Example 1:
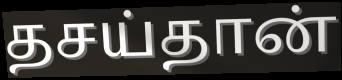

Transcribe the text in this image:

தசய்தான்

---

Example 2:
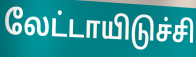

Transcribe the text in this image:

லேட்டாயிடுச்சி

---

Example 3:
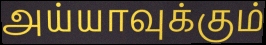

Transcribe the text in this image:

அய்யாவுக்கும்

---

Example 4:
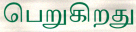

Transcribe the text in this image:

பெறுகிறது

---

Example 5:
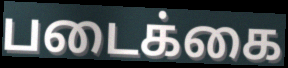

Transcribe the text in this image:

படைக்கை